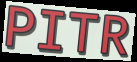
PITR